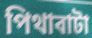
পিথাবাটা